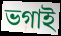
ভগাই